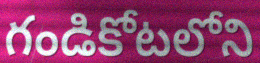
గండికోటలోని